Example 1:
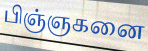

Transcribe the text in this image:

பிஞ்ஞகனை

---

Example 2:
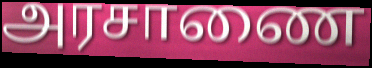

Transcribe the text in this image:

அரசாணை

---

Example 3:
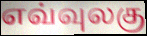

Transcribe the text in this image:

எவ்வுலகு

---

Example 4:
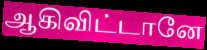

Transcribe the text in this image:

ஆகிவிட்டானே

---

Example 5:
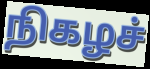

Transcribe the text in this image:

நிகழச்